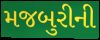
મજબુરીની